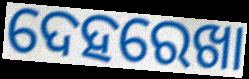
ଦେହରେଖା